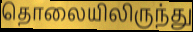
தொலையிலிருந்து